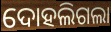
ଦୋହଲିଗଲା